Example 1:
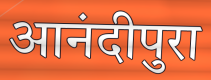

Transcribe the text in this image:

आनंदीपुरा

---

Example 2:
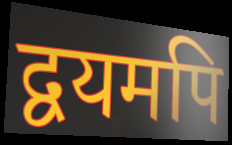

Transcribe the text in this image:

द्वयमपि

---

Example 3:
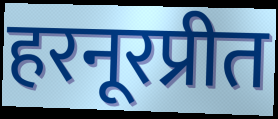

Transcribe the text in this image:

हरनूरप्रीत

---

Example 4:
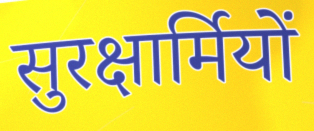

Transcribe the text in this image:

सुरक्षार्मियों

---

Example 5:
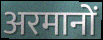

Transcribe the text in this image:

अरमानों